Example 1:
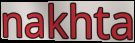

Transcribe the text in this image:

nakhta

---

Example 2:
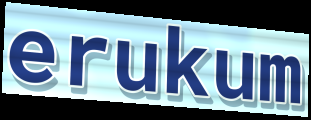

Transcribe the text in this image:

erukum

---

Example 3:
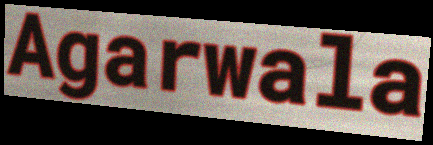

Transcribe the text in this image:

Agarwala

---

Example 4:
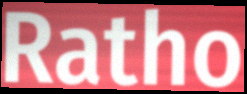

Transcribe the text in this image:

Ratho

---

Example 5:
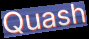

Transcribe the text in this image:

Quash